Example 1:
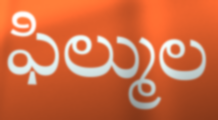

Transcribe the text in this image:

ఫిల్ముల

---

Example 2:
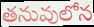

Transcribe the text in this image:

తనువులోన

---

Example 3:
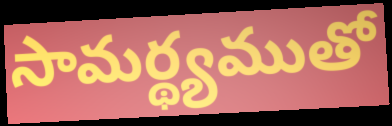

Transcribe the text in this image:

సామర్థ్యముతో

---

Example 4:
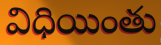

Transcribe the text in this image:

విధియింతు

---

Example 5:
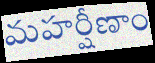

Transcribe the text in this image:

మహర్షీణాం